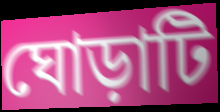
ঘোড়াটি